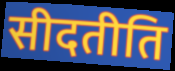
सीदतीति